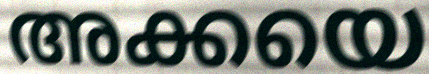
അക്കയെ